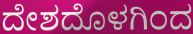
ದೇಶದೊಳಗಿಂದ